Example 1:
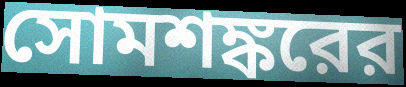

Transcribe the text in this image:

সোমশঙ্করের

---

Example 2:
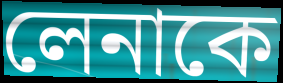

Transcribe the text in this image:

লেনাকে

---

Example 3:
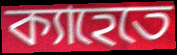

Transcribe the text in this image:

ক্যাহেতে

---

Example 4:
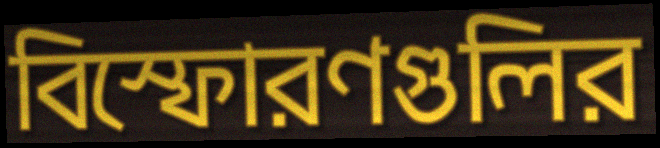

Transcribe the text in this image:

বিস্ফোরণগুলির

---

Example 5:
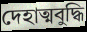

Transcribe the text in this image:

দেহাত্মবুদ্ধি